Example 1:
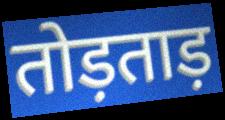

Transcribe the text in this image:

तोड़ताड़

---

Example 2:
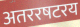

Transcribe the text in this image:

अतररषटरय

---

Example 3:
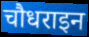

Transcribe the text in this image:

चौधराइन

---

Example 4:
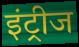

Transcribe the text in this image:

इंट्रीज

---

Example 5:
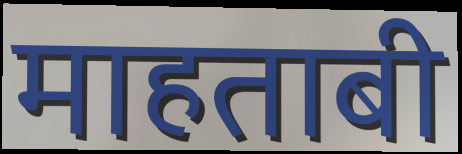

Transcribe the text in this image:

माहताबी